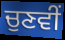
ਚੁਣਵੀਂ